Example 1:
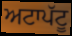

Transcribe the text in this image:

ਅਟਾਪੱਟੂ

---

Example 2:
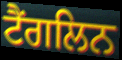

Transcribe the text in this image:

ਟੈਂਗਲਿਨ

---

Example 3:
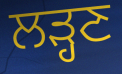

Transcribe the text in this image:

ਲੜ੍ਹਣ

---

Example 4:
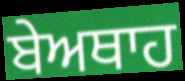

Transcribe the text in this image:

ਬੇਅਥਾਹ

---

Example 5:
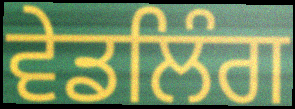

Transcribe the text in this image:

ਵੇਡਲਿੰਗ